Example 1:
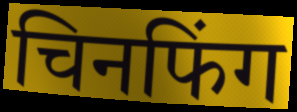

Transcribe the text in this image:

चिनफिंग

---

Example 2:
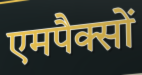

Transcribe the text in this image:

एमपैक्सों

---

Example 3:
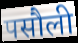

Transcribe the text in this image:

पसौली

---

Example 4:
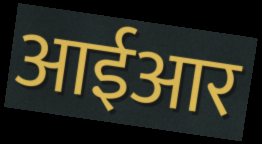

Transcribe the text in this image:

आईआर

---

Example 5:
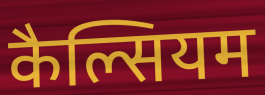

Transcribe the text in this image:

कैल्सियम